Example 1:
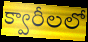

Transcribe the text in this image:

క్వారీలలో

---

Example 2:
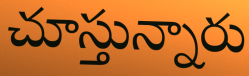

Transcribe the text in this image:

చూస్తున్నారు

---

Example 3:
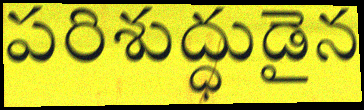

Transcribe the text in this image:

పరిశుద్ధుడైన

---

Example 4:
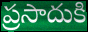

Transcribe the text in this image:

ప్రసాదుకి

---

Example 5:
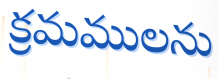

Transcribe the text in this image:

క్రమములను